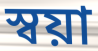
স্বয়া